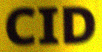
CID